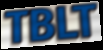
TBLT